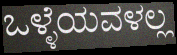
ಒಳ್ಳೆಯವಳಲ್ಲ